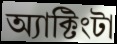
অ্যাক্টিংটা